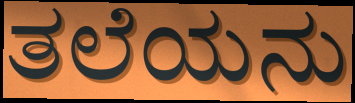
ತಲೆಯನು